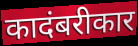
कादंबरीकार